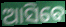
ଆସିବେ